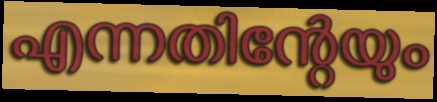
എന്നതിന്റേയും